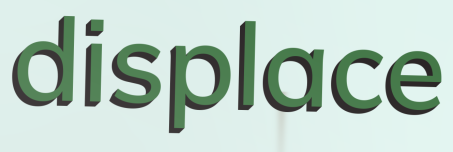
displace